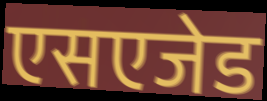
एसएजेड